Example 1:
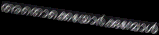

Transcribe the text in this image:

അതൊക്കെയോർക്കുമ്പോൾ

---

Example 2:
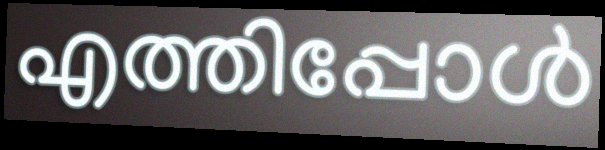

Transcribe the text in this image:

എത്തിപ്പോൾ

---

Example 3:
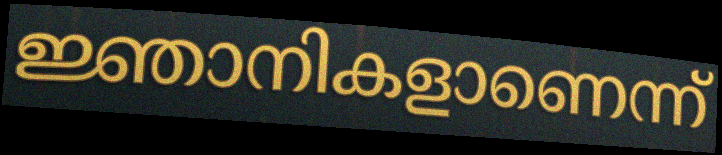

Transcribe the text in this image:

ജ്ഞാനികളാണെന്ന്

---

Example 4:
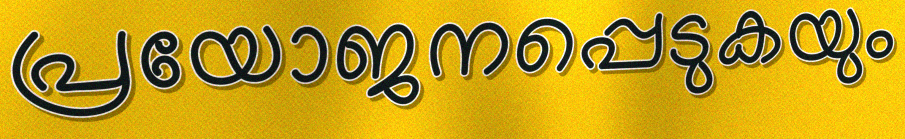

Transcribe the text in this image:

പ്രയോജനപ്പെടുകയും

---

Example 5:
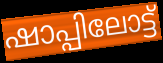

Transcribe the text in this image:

ഷാപ്പിലോട്ട്